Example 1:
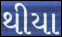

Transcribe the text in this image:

થીયા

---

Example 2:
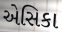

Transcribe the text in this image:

એસિકા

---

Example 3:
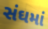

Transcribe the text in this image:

સંઘમાં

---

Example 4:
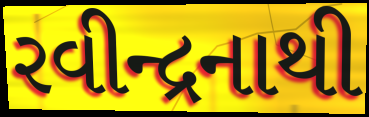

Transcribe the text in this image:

રવીન્દ્રનાથી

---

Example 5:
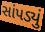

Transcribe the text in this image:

સાંપડ્યું